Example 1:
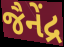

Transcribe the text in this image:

જૈનેંદ્ર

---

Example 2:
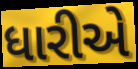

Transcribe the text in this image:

ધારીએ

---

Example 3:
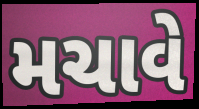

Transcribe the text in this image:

મચાવે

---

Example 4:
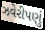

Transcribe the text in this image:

ઝવેરીપણું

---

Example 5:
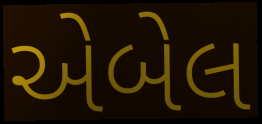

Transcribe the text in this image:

એબેલ